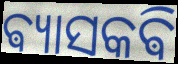
ଵ୍ୟାସକଵି